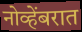
नोव्हेंबरात